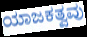
ಯಾಜಕತ್ವವು